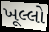
ખૂલ્લો